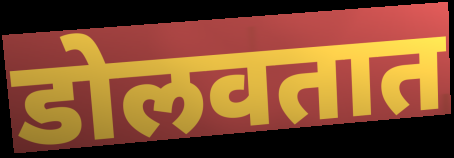
डोलवतात